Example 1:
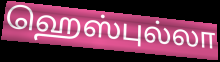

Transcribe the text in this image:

ஹெஸ்புல்லா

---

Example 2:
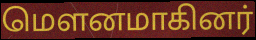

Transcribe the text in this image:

மௌனமாகினர்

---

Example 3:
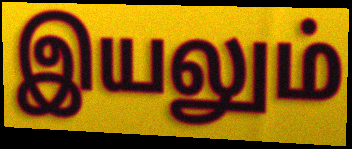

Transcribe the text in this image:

இயலும்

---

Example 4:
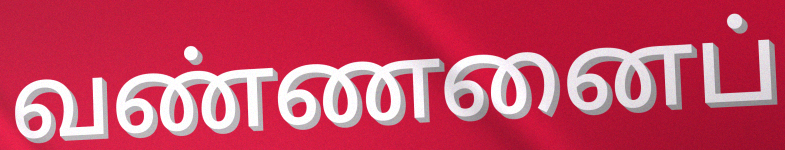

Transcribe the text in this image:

வண்ணனைப்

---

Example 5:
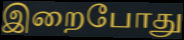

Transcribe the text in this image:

இறைபோது